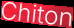
Chiton